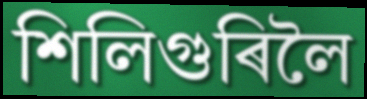
শিলিগুৰিলৈ